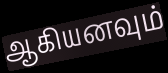
ஆகியனவும்